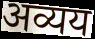
अव्यय